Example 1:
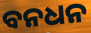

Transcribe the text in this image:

ବନଧନ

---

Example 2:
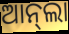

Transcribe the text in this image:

ଆନ୍‌ଲା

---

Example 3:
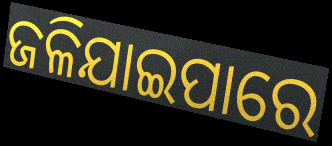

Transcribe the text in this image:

ଜଳିଯାଇପାରେ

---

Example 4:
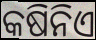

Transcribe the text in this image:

କଷିନିଏ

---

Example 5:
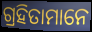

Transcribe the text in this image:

ଗ୍ରହିତାମାନେ